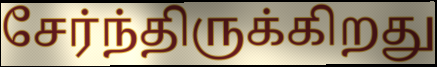
சேர்ந்திருக்கிறது